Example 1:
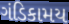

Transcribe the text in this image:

ગંડિકામય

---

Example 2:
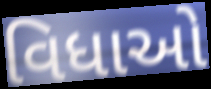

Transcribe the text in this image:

વિધાઓ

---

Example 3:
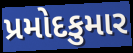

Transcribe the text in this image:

પ્રમોદકુમાર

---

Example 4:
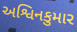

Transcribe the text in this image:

અશ્વિનકુમાર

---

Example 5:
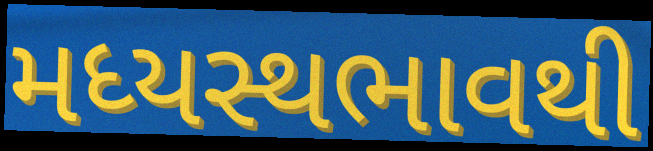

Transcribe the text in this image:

મધ્યસ્થભાવથી